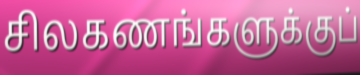
சிலகணங்களுக்குப்